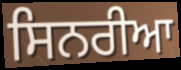
ਸਿਨਰੀਆ